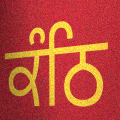
ਕੰਠਿ